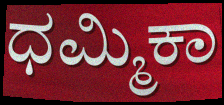
ಧಮ್ಮಿಕಾ